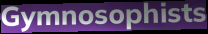
Gymnosophists